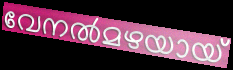
വേനൽമഴയായ്